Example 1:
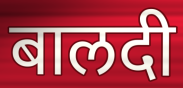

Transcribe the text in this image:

बालदी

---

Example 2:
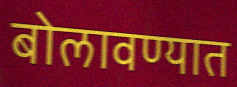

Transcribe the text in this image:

बोलावण्यात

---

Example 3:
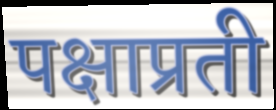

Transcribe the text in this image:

पक्षाप्रती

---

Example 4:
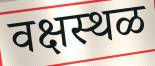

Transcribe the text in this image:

वक्षस्थळ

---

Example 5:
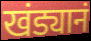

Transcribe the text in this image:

खंड्यानं